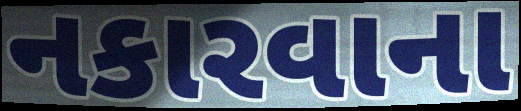
નકારવાના